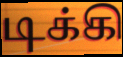
டிக்கி